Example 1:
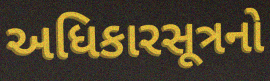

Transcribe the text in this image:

અધિકારસૂત્રનો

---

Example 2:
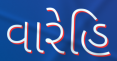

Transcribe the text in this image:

વારેહિ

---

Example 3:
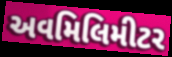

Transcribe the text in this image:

અવમિલિમીટર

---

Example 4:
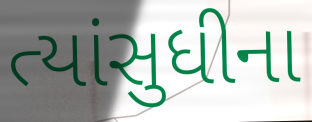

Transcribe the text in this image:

ત્યાંસુધીના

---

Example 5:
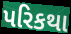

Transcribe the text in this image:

પરિકથા